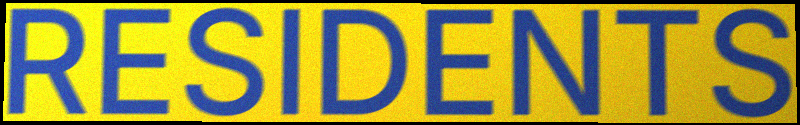
RESIDENTS